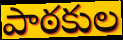
పాఠకుల